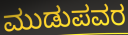
ಮುಡುಪವರ